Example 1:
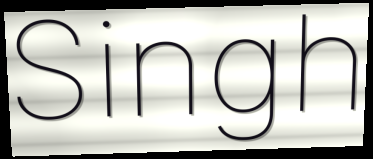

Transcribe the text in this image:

Singh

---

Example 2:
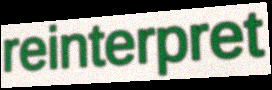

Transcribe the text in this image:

reinterpret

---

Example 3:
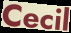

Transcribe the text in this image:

Cecil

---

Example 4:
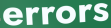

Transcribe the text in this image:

errors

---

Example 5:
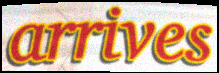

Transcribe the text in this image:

arrives